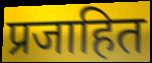
प्रजाहित